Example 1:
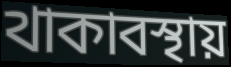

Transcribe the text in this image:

থাকাবস্থায়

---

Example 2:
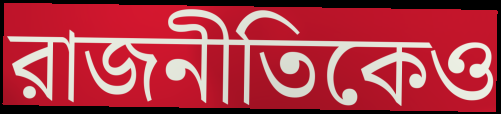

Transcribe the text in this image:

রাজনীতিকেও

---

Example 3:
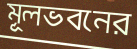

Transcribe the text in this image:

মূলভবনের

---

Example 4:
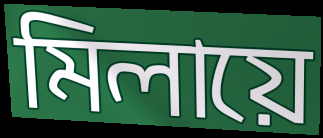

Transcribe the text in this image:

মিলায়ে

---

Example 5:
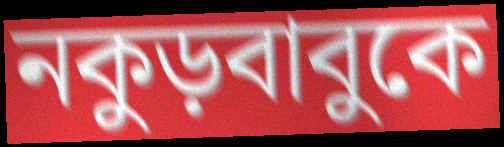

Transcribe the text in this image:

নকুড়বাবুকে